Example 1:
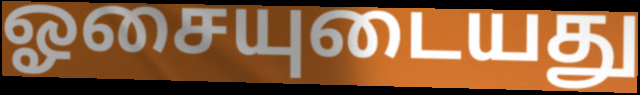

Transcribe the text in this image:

ஓசையுடையது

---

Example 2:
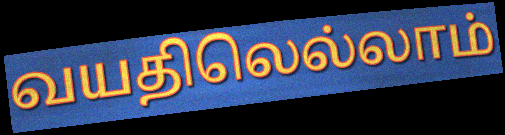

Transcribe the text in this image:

வயதிலெல்லாம்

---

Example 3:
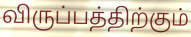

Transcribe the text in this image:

விருப்பத்திற்கும்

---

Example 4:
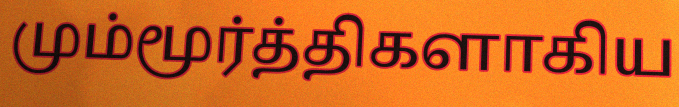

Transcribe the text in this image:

மும்மூர்த்திகளாகிய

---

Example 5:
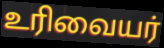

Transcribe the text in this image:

உரிவையர்